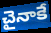
చైనాకే